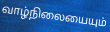
வாழ்நிலையையும்